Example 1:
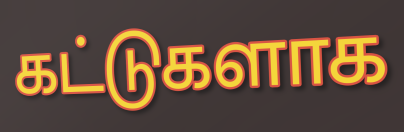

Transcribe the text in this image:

கட்டுகளாக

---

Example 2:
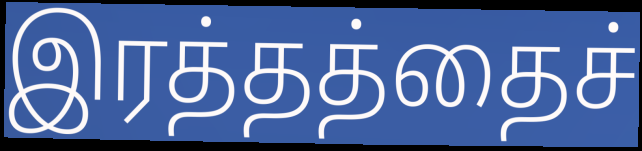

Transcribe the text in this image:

இரத்தத்தைச்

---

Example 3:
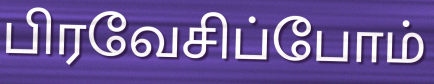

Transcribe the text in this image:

பிரவேசிப்போம்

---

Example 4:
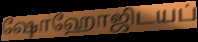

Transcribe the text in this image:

ஷோஹோஜிடயப்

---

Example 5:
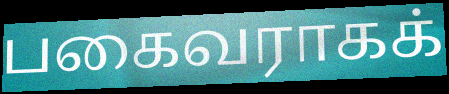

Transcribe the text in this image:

பகைவராகக்